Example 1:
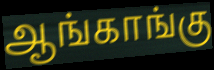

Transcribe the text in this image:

ஆங்காங்கு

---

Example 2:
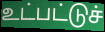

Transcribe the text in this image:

உட்பட்டுச்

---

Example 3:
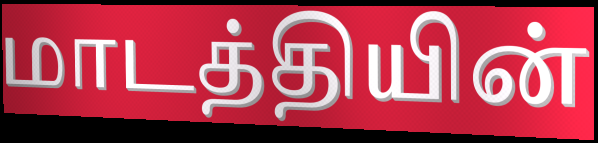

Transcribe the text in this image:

மாடத்தியின்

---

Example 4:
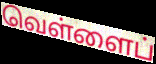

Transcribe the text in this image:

வெள்ளைப்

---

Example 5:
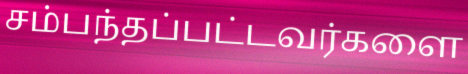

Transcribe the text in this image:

சம்பந்தப்பட்டவர்களை